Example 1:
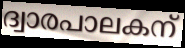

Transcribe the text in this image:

ദ്വാരപാലകന്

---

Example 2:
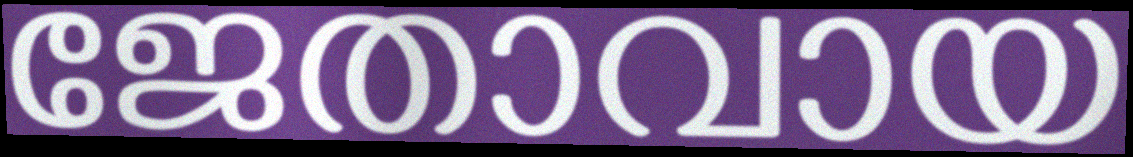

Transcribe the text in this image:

ജേതാവായ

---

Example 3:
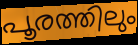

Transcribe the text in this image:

പൂരത്തിലും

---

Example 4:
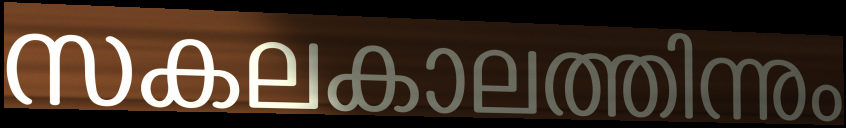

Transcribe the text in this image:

സകലകാലത്തിന്നും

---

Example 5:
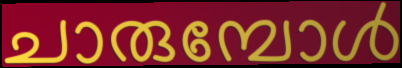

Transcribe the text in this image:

ചാരുമ്പോൾ